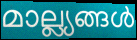
മാല്ല്യങ്ങൾ